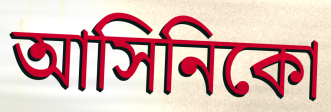
আসিনিকো